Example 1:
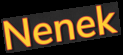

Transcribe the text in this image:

Nenek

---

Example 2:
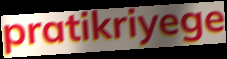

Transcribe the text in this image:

pratikriyege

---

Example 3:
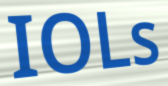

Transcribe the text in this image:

IOLs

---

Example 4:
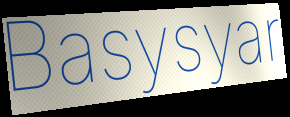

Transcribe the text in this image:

Basysyar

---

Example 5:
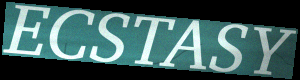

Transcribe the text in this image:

ECSTASY